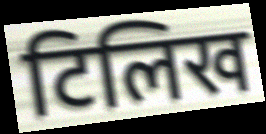
टिलिख